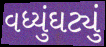
વધ્યુંઘટ્યું